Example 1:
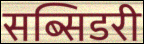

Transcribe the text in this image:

सब्सिडरी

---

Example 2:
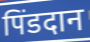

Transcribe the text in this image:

पिंडदान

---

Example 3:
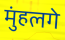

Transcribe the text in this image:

मुंहलगे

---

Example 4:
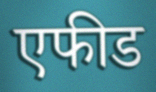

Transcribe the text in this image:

एफीड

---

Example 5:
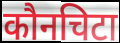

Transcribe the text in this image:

कौनचिटा